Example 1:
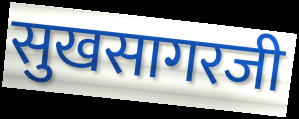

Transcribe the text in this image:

सुखसागरजी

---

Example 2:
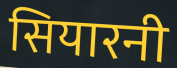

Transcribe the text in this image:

सियारनी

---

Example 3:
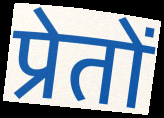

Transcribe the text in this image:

प्रेतों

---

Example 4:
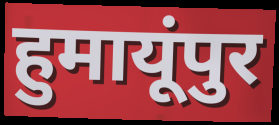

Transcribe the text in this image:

हुमायूंपुर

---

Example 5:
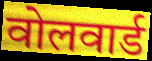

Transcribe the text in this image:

वोलवार्ड